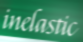
inelastic